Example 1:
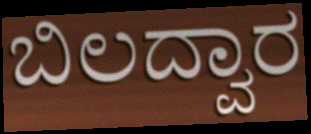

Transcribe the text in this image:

ಬಿಲದ್ವಾರ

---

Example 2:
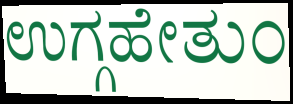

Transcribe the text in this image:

ಉಗ್ಗಹೇತುಂ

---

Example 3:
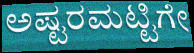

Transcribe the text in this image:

ಅಷ್ಟರಮಟ್ಟಿಗೇ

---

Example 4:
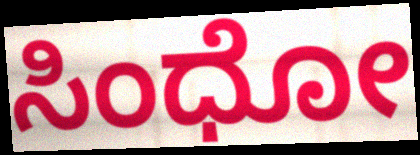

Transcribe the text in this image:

ಸಿಂಧೋ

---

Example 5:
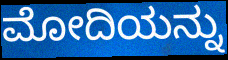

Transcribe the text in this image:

ಮೋದಿಯನ್ನು